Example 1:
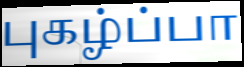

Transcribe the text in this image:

புகழ்ப்பா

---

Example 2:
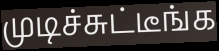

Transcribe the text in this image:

முடிச்சுட்டீங்க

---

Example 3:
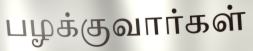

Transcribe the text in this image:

பழக்குவார்கள்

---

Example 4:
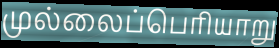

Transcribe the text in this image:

முல்லைப்பெரியாறு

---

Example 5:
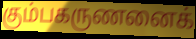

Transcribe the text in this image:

கும்பகருணனைக்